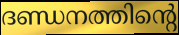
ദണ്ഡനത്തിന്റെ